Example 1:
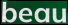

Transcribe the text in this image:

beau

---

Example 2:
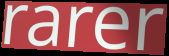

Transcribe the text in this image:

rarer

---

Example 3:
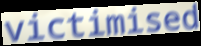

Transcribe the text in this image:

victimised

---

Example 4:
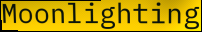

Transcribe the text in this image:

Moonlighting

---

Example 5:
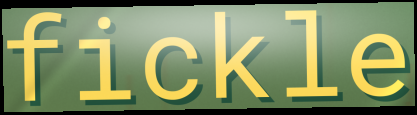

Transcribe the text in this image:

fickle